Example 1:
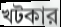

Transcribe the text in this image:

খটকার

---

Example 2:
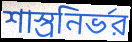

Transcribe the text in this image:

শাস্ত্রনির্ভর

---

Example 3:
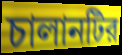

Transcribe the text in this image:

চালানটির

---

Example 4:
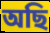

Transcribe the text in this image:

অছি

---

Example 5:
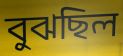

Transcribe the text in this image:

বুঝছিল